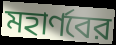
মহার্ণবের